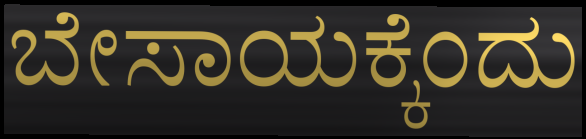
ಬೇಸಾಯಕ್ಕೆಂದು